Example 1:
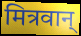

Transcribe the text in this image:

मित्रवान्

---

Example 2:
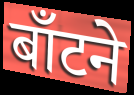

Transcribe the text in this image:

बाँटने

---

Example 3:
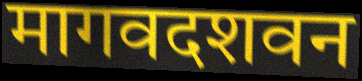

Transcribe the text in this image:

मागवदशवन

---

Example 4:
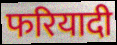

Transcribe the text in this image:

फरियादी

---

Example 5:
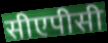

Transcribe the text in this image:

सीएपीसी